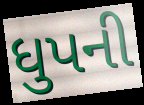
ધુપની